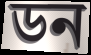
ডন